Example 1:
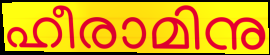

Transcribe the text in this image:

ഹീരാമിനു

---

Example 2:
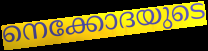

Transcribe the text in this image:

നെക്കോദയുടെ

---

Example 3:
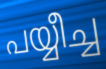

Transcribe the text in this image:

പയ്യീച്ച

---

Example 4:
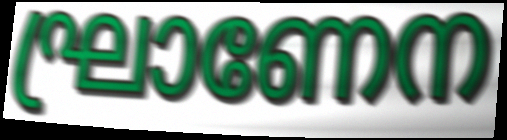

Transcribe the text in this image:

ഘ്രാണേന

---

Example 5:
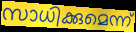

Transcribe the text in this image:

സാധിക്കുമെന്ന്